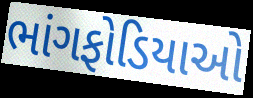
ભાંગફોડિયાઓ